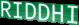
RIDDHI